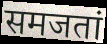
समजतां